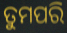
ତୁମପରି